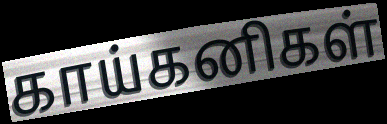
காய்கனிகள்